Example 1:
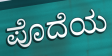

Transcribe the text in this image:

ಪೊದೆಯ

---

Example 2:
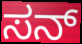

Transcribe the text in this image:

ಸನ್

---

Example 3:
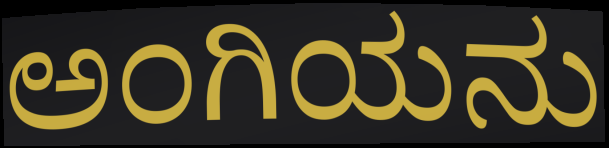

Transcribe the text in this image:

ಅಂಗಿಯನು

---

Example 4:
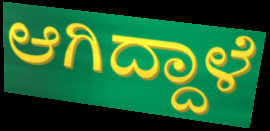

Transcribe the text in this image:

ಆಗಿದ್ದಾಳೆ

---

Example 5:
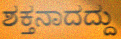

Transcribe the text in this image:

ಶಕ್ತನಾದದ್ದು